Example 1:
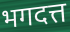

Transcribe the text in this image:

भगदत्त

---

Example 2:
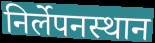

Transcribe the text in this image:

निर्लेपनस्थान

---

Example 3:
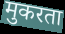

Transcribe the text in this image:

मुकरता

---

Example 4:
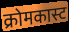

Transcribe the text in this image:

क्रोमकास्ट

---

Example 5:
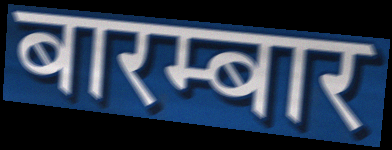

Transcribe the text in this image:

बारम्‍बार